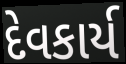
દેવકાર્ય